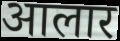
आलार